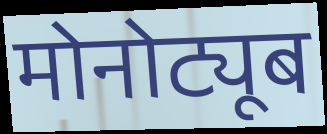
मोनोट्यूब